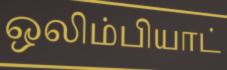
ஒலிம்பியாட்